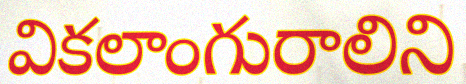
వికలాంగురాలిని